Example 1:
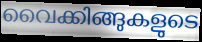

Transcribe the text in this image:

വൈക്കിങ്ങുകളുടെ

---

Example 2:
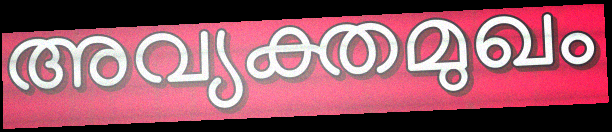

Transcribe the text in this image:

അവ്യക്തമുഖം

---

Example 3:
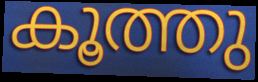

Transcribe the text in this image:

കൂത്തു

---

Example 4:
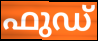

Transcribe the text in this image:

ഫുഡ്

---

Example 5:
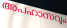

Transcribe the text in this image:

അപഹാസവും